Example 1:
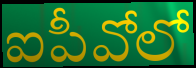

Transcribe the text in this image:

ఐపీవోలో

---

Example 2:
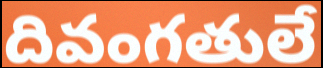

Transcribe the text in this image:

దివంగతులే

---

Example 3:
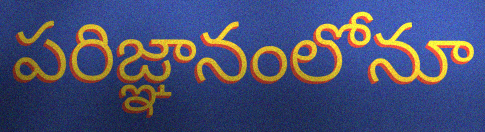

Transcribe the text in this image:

పరిజ్ఞానంలోనూ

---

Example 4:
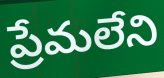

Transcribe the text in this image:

ప్రేమలేని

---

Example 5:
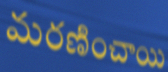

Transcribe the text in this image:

మరణించాయి